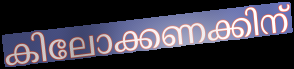
കിലോക്കണക്കിന്